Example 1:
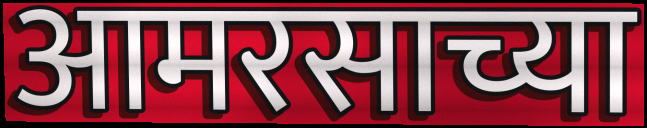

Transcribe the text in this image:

आमरसाच्या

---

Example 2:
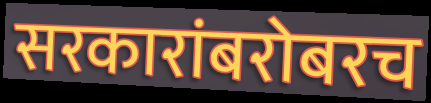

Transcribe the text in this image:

सरकारांबरोबरच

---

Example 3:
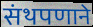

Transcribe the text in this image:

संथपणाने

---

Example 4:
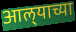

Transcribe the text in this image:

आल्याच्या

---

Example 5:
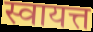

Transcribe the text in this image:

स्वायत्त